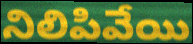
నిలిపివేయి